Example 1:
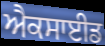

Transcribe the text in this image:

ਐਕਸਾਈਡ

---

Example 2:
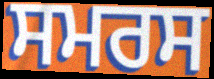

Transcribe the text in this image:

ਸਮਰਸ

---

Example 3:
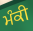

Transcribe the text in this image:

ਮੰਕੀ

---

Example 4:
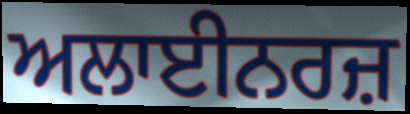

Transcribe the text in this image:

ਅਲਾਈਨਰਜ਼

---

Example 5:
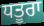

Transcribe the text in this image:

ਧਤੂਰਾ